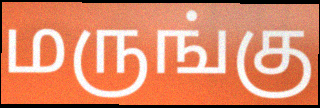
மருங்கு